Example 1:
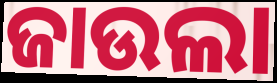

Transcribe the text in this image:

ଜାଉଲା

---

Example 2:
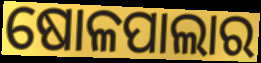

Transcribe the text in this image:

ଷୋଳପାଲାର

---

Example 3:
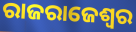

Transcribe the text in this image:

ରାଜରାଜେଶ୍ଵର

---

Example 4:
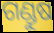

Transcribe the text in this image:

ଗଣ୍ଡୁଷ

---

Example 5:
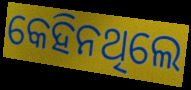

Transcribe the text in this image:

କେହିନଥିଲେ